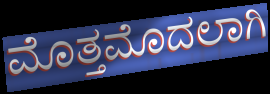
ಮೊತ್ತಮೊದಲಾಗಿ